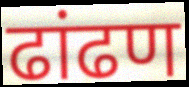
ढांढण